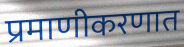
प्रमाणीकरणात